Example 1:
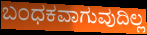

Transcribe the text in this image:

ಬಂಧಕವಾಗುವುದಿಲ್ಲ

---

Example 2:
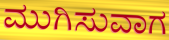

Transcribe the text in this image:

ಮುಗಿಸುವಾಗ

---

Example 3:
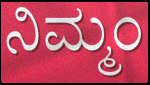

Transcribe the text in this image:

ನಿಮ್ಮಂ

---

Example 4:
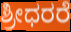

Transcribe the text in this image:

ಶ್ರೀಧರರೆ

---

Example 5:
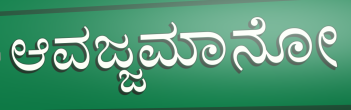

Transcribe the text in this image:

ಆವಜ್ಜಮಾನೋ